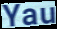
Yau